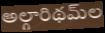
అల్గారిథమ్‌ల